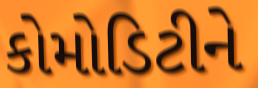
કોમોડિટીને